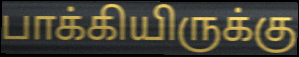
பாக்கியிருக்கு